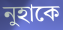
নুহাকে